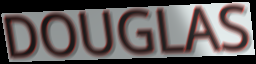
DOUGLAS